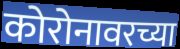
कोरोनावरच्या